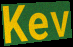
Kev